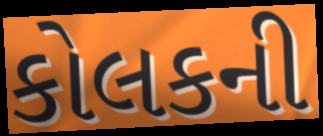
કોલકની